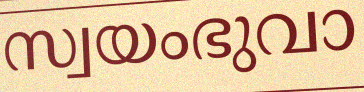
സ്വയംഭുവാ